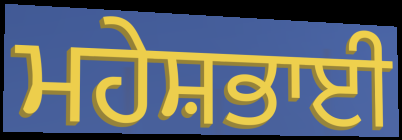
ਮਹੇਸ਼ਭਾਈ